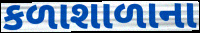
કળાશાળાના